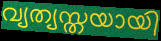
വ്യത്യസ്തയായി